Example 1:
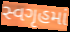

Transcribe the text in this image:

સ્વગૃહમાં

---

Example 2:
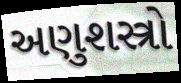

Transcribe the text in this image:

અણુશસ્ત્રો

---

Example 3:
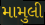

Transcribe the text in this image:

મામુલી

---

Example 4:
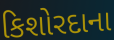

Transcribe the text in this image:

કિશોરદાના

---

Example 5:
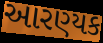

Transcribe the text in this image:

આરણ્યક